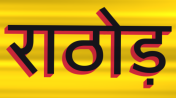
राठोड़